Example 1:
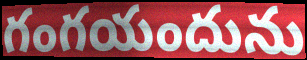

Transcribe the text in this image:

గంగయందును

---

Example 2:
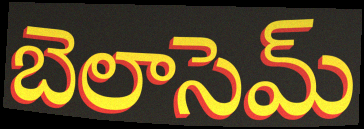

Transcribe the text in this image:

బెలాసెమ్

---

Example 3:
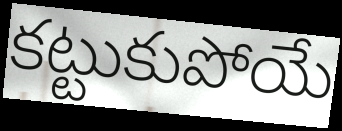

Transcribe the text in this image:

కట్టుకుపోయే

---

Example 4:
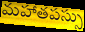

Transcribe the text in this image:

మహాతపస్సు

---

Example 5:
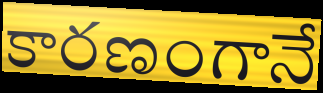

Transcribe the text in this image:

కారణంగానే